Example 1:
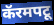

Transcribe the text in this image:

कॅरमपटू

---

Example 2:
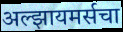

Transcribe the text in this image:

अल्झायमर्सचा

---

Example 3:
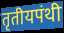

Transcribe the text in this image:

तृतीयपंथी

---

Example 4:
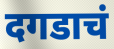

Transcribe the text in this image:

दगडाचं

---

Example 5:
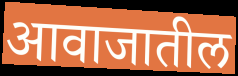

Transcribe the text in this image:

आवाजातील